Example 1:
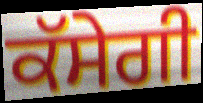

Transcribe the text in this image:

ਕੱਸੇਗੀ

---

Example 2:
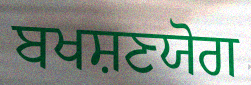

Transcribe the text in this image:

ਬਖਸ਼ਣਯੋਗ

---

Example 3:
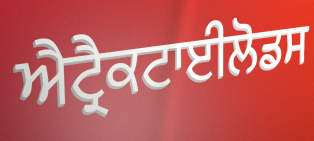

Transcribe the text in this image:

ਐਟ੍ਰੈਕਟਾਈਲੋਡਸ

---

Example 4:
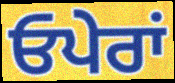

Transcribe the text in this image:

ਓਪੇਰਾਂ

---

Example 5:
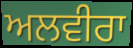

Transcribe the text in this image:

ਅਲਵੀਰਾ